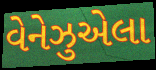
વેનેઝુએલા